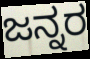
ಜನ್ನರ